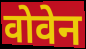
वोवेन